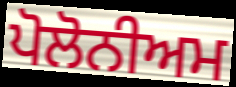
ਪੋਲੋਨੀਅਮ